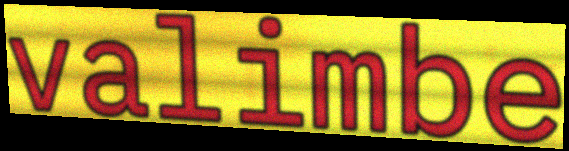
valimbe